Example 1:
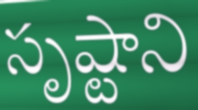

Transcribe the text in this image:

సృష్టాని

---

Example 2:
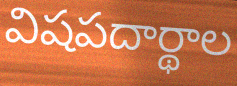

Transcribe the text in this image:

విషపదార్థాల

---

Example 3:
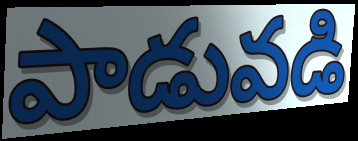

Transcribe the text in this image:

పాడువడి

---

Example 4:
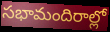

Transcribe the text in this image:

సభామందిరాల్లో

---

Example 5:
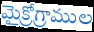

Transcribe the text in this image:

మైక్రోగ్రాముల